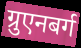
ग्रुएनबर्ग